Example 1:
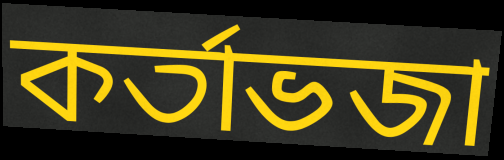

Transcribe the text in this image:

কর্তাভজা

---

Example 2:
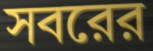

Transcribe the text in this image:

সবরের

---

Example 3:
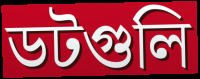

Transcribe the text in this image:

ডটগুলি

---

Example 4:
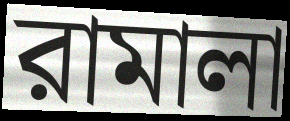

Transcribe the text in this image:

রামালা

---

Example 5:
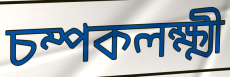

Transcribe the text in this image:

চম্পকলক্ষ্মী